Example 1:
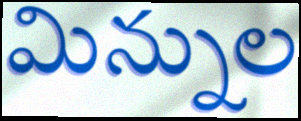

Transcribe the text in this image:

మిన్నుల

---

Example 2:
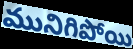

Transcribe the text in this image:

మునిగిపోయి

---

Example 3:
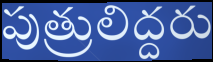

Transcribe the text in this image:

పుత్రులిద్దరు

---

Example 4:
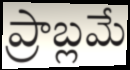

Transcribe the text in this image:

ప్రాబ్లమే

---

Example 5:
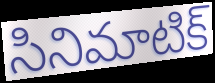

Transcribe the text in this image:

సినిమాటిక్